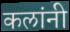
कलांनी